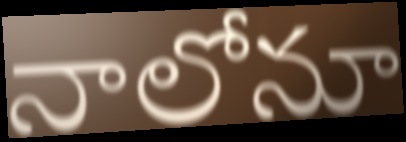
నాలోనూ